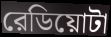
রেডিয়োটা